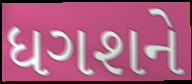
ધગશને